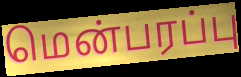
மென்பரப்பு